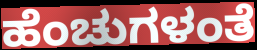
ಹೆಂಚುಗಳಂತೆ